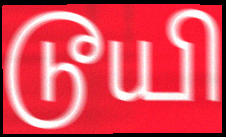
டூயி